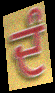
ਦੰ